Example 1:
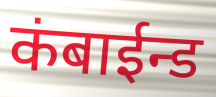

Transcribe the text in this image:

कंबाईन्ड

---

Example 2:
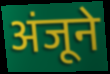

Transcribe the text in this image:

अंजूने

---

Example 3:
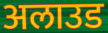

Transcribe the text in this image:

अलाउड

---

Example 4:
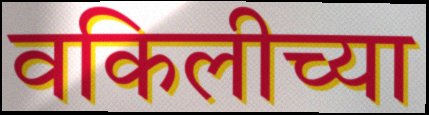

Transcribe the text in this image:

वकिलीच्या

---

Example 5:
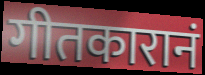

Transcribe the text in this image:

गीतकारानं